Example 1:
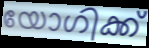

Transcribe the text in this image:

യോഗിക്ക്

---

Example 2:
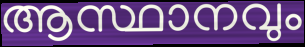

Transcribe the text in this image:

ആസ്ഥാനവും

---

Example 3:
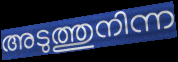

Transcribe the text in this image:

അടുത്തുനിന്ന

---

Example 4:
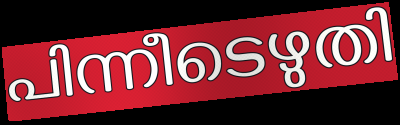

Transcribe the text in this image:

പിന്നീടെഴുതി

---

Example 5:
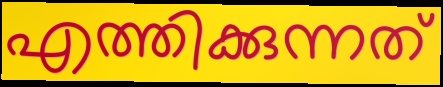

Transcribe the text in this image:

എത്തിക്കുന്നത്